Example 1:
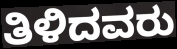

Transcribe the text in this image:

ತಿಳಿದವರು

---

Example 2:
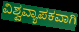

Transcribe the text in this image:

ವಿಶ್ವವ್ಯಾಪಕವಾಗಿ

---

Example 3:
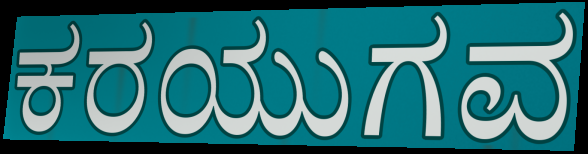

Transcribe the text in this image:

ಕರಯುಗವ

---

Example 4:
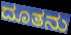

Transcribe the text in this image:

ದೂತನು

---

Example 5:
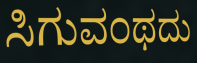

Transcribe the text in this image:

ಸಿಗುವಂಥದು